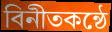
বিনীতকন্ঠে